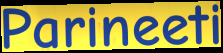
Parineeti